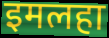
इमलहा